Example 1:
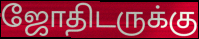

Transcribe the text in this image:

ஜோதிடருக்கு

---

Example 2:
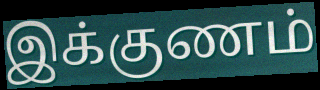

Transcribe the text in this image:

இக்குணம்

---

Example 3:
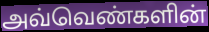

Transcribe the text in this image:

அவ்வெண்களின்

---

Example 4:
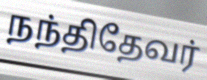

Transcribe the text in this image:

நந்திதேவர்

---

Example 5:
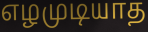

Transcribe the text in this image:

எழமுடியாத